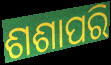
ଶଶାପରି